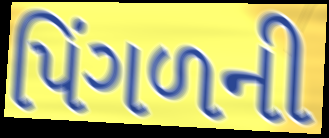
પિંગળની